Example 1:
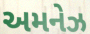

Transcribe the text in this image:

અમનેઝ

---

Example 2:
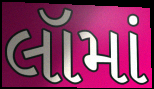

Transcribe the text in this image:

લૉમાં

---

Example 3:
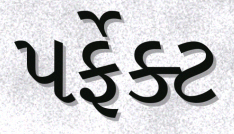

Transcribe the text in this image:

પર્ફેક્ટ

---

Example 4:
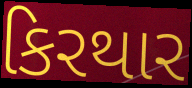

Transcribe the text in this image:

કિરથાર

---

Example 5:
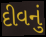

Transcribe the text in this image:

દીવનું